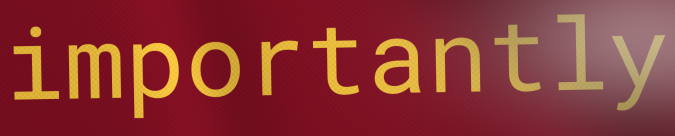
importantly